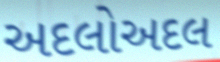
અદલોઅદલ